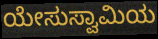
ಯೇಸುಸ್ವಾಮಿಯ